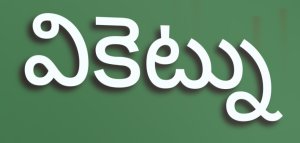
వికెట్ను